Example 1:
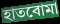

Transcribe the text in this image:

হাতবোমা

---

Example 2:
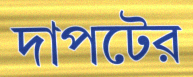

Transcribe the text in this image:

দাপটের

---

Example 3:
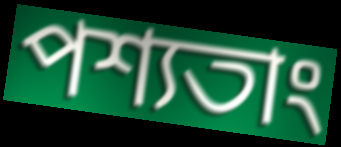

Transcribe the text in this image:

পশ্যতাং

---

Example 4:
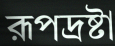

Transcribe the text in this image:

রূপদ্রষ্টা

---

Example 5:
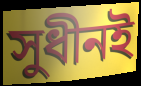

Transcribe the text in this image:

সুধীনই